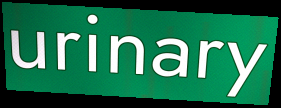
urinary